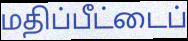
மதிப்பீட்டைப்